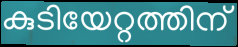
കുടിയേറ്റത്തിന്